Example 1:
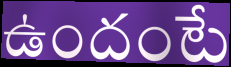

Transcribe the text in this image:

ఉందంటే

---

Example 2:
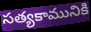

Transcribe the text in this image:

సత్యకామునికి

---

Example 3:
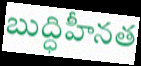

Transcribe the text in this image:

బుద్ధిహీనత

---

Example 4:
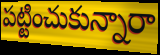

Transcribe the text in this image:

పట్టించుకున్నారా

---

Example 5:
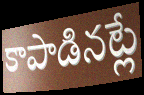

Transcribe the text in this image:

కాపాడినట్లే